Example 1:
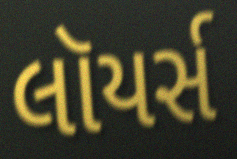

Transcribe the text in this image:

લૉયર્સ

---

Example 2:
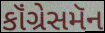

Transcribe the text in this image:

કૉંગ્રેસમૅન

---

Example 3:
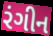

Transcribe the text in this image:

રંગીન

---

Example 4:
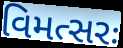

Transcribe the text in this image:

વિમત્સરઃ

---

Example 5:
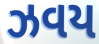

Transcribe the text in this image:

ઝવય